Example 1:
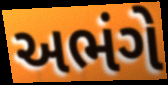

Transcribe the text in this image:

અભંગે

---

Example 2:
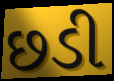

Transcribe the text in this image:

છડી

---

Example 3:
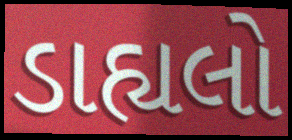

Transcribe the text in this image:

ડાહ્યલો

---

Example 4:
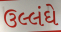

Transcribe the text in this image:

ઉલ્લંઘે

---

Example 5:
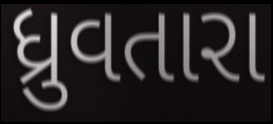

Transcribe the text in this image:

ધ્રુવતારા